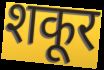
शकूर